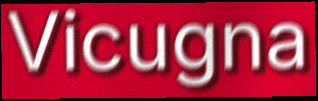
Vicugna